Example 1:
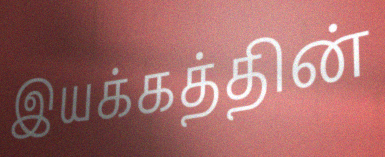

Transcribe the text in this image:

இயக்கத்தின்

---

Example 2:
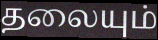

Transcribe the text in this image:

தலையும்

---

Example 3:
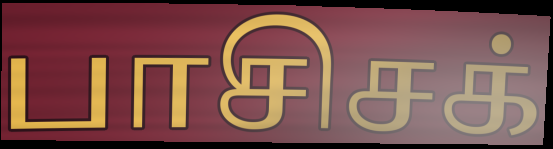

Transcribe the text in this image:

பாசிசக்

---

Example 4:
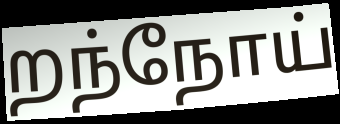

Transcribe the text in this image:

றந்நோய்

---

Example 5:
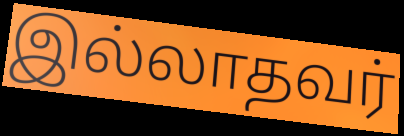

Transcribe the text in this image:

இல்லாதவர்